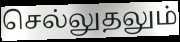
செல்லுதலும்